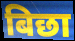
बिछा